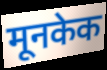
मूनकेक